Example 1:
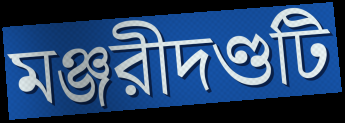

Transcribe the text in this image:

মঞ্জরীদণ্ডটি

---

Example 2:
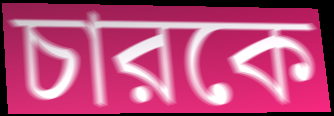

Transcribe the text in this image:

চারকে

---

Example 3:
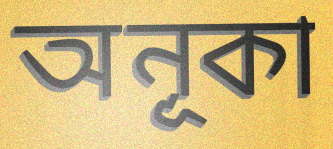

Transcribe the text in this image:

অনূকা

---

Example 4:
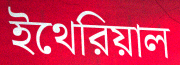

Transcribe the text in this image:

ইথেরিয়াল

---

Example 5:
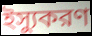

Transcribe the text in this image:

ইস্যুকরণ